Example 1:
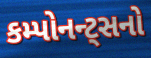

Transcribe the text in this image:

કમ્પોનન્ટ્સનો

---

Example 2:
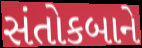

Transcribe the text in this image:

સંતોકબાને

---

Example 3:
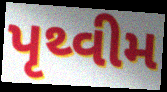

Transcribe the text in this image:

પૃથ્વીમ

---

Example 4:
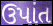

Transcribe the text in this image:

ઉપાંત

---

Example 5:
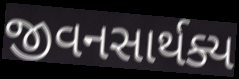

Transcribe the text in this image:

જીવનસાર્થક્ય